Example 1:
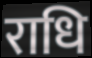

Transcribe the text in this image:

राधि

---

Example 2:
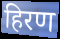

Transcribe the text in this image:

हिरण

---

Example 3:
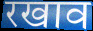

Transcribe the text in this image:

रखाव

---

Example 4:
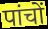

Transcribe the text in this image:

पांचों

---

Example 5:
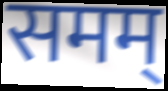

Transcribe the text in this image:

समम्